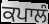
ਕਪਾਲੰ